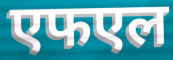
एफएल